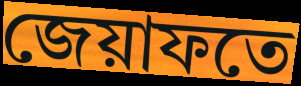
জেয়াফতে